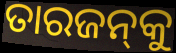
ତାରଜନ୍‌କୁ